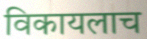
विकायलाच